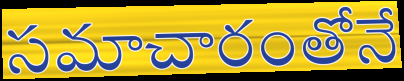
సమాచారంతోనే